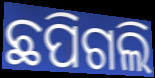
ଛପିଗଲି